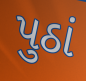
પુઠાં